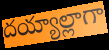
దయ్యాల్లాగా